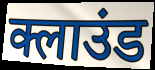
क्लाउंड